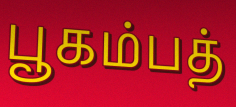
பூகம்பத்